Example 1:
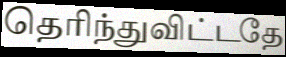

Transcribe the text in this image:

தெரிந்துவிட்டதே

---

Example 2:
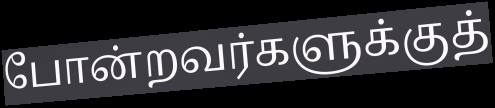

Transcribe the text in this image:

போன்றவர்களுக்குத்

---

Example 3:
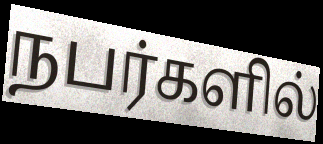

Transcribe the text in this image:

நபர்களில்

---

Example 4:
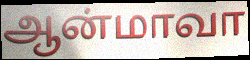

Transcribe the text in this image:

ஆன்மாவா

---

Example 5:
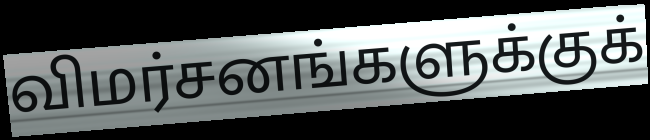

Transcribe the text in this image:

விமர்சனங்களுக்குக்